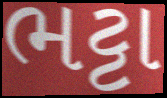
ભટ્ટા